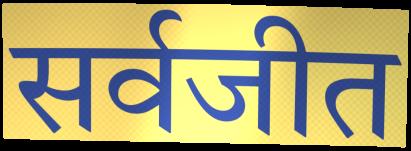
सर्वजीत